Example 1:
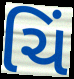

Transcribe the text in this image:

ચિં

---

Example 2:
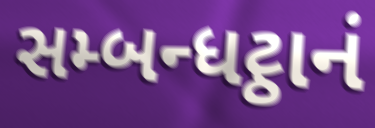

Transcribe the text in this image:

સમ્બન્ધટ્ઠાનં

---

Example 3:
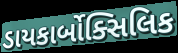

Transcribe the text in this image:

ડાયકાર્બોક્સિલિક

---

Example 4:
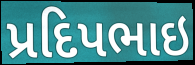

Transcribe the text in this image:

પ્રદિપભાઇ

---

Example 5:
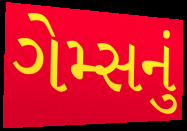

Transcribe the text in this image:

ગેમ્સનું